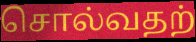
சொல்வதற்